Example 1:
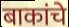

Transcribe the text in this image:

बाकांचे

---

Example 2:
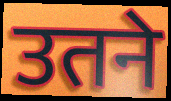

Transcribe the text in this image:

उतने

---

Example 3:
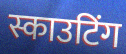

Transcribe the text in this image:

स्काउटिंग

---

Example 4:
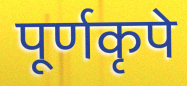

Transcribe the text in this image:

पूर्णकृपे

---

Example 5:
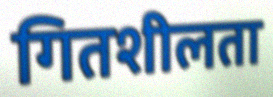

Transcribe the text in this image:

गितशीलता